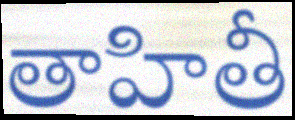
తాహితీ